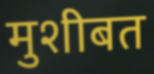
मुशीबत